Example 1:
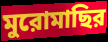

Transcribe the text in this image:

মুরোমাছির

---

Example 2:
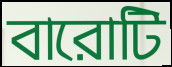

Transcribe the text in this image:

বারোটি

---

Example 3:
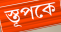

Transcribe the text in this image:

স্তূপকে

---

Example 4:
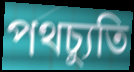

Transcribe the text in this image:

পথচ্যুতি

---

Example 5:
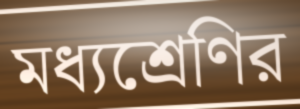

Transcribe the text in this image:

মধ্যশ্রেণির